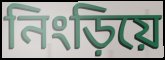
নিংড়িয়ে